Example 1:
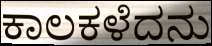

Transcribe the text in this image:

ಕಾಲಕಳೆದನು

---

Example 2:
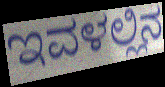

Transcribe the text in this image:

ಇವಳಲ್ಲಿನ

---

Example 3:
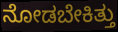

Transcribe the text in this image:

ನೋಡಬೇಕಿತ್ತು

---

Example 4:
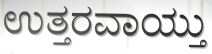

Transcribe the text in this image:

ಉತ್ತರವಾಯ್ತು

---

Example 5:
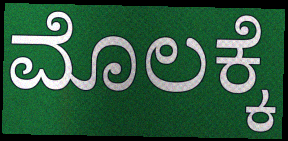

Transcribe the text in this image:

ಮೊಲಕ್ಕೆ